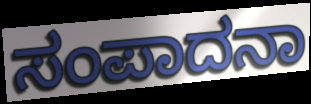
ಸಂಪಾದನಾ